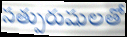
సత్పురుషులతో